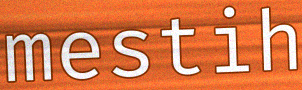
mestih